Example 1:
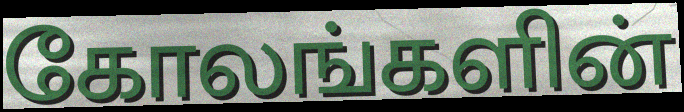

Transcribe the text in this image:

கோலங்களின்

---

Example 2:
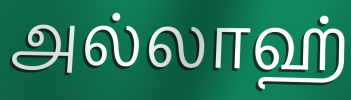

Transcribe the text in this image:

அல்லாஹ்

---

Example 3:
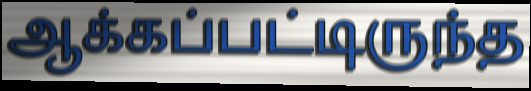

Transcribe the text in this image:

ஆக்கப்பட்டிருந்த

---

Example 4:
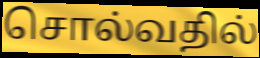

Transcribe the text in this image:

சொல்வதில்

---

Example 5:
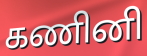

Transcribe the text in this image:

கணினி